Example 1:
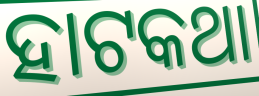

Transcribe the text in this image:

ହାଟକଥା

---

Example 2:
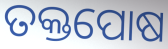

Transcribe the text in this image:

ତକ୍ତପୋଷ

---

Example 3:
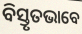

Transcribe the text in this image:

ବିସ୍ତୃତଭାବେ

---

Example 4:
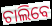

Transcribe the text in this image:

ଚାଲିବେ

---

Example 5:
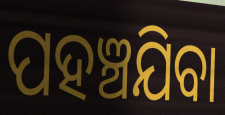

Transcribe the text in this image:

ପହଞ୍ଚଯିବା